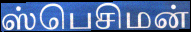
ஸ்பெசிமன்